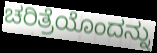
ಚರಿತ್ರೆಯೊಂದನ್ನು